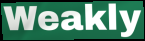
Weakly